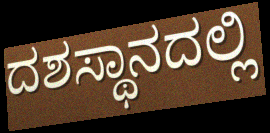
ದಶಸ್ಥಾನದಲ್ಲಿ